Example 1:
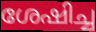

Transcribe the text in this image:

ശേഷിച്ച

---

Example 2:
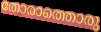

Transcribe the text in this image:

തോരാത്തൊരു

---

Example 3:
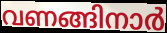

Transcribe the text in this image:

വണങ്ങിനാർ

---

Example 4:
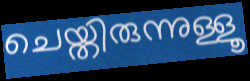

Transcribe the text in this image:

ചെയ്തിരുന്നുള്ളൂ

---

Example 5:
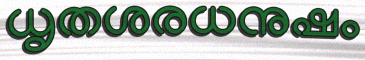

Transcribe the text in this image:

ധൃതശരധനുഷം